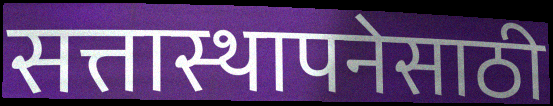
सत्तास्थापनेसाठी